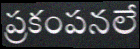
ప్రకంపనలే